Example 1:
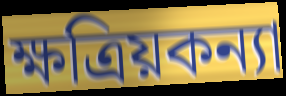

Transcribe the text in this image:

ক্ষত্রিয়কন্যা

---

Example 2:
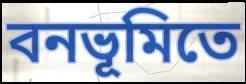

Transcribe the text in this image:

বনভূমিতে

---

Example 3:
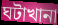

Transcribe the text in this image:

ঘটাখানা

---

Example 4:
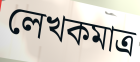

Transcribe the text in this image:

লেখকমাত্র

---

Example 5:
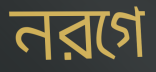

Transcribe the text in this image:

নরগে